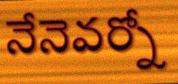
నేనెవర్నో